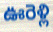
ఊరెళ్లి